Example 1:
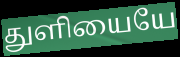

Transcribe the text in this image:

துளியையே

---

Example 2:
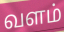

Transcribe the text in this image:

வளம்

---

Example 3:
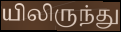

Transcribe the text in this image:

யிலிருந்து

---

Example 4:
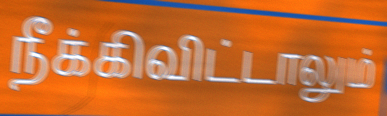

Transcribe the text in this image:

நீக்கிவிட்டாலும்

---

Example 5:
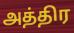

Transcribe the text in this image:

அத்திர